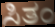
ಸಿತಂ